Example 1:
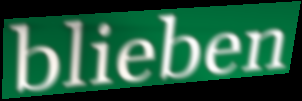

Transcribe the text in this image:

blieben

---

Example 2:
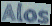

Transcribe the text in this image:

Alos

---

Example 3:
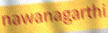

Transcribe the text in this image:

nawanagarthi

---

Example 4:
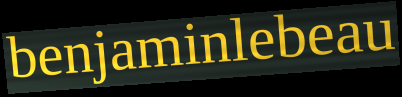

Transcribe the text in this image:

benjaminlebeau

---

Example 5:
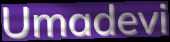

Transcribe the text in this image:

Umadevi